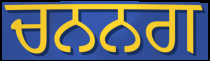
ਚਨਨਗ